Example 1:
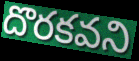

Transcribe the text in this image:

దొరకవని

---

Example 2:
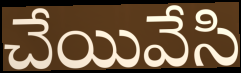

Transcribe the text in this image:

చేయివేసి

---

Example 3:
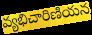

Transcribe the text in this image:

వ్యభిచారిణియన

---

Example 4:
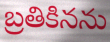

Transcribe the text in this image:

బ్రతికినను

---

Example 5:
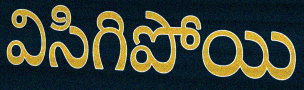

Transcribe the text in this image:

విసిగిపోయి